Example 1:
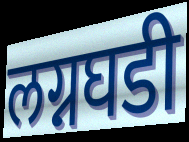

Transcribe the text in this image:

लग्नघडी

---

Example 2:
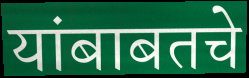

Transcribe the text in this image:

यांबाबतचे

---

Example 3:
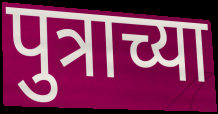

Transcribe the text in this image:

पुत्राच्या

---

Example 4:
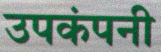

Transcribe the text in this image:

उपकंपनी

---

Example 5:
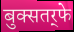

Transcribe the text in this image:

बुक्सतर्फे